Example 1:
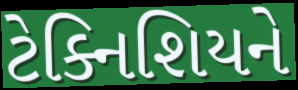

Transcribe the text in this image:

ટેક્નિશિયને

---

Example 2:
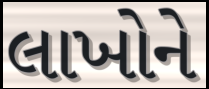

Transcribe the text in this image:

લાખોને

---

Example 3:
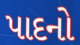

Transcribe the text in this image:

પાદનો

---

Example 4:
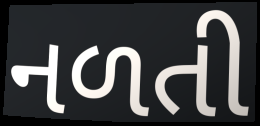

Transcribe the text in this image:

નળતી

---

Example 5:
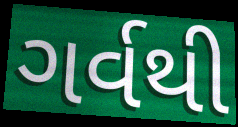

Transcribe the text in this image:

ગર્વથી